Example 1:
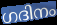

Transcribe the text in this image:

ഗദിനം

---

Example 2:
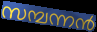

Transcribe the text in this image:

സമ്പന്നൻ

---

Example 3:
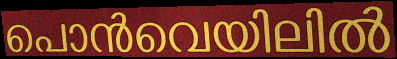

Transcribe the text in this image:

പൊൻവെയിലിൽ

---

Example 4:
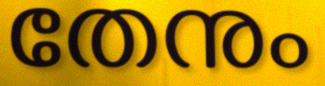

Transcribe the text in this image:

തേനും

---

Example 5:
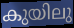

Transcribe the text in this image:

കുയിലു